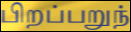
பிறப்பறுந்